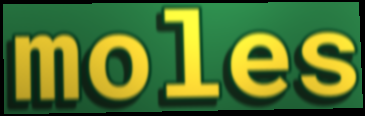
moles